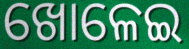
ଖୋଳେଇ